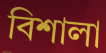
বিশালা